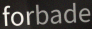
forbade